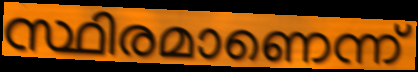
സ്ഥിരമാണെന്ന്